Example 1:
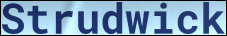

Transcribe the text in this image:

Strudwick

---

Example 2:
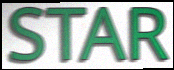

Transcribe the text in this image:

STAR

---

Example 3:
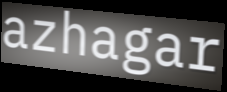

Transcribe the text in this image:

azhagar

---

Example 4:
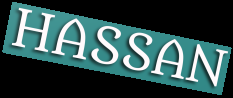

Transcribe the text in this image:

HASSAN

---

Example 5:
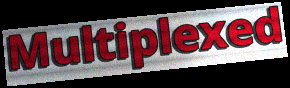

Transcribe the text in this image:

Multiplexed